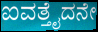
ಐವತ್ತೈದನೇ